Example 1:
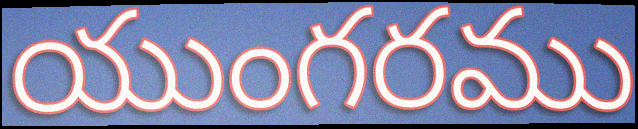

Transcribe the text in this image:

యుంగరము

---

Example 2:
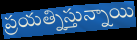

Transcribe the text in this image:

ప్రయత్నిస్తున్నాయి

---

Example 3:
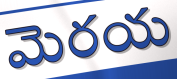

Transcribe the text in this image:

మెరయ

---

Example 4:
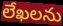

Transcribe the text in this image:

లేఖలను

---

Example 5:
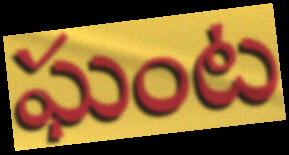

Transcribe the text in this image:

ఘంట